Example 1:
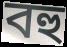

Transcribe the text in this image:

বহু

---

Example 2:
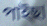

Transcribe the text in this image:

পাইছা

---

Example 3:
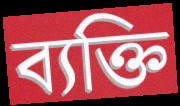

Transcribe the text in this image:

ব্যক্তি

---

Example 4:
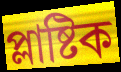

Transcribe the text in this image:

প্লাষ্টিক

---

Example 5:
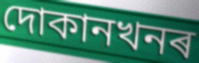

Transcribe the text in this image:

দোকানখনৰ